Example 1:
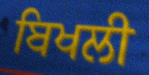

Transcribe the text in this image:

ਬਿਖਲੀ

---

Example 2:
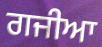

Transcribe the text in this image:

ਗਜੀਆ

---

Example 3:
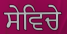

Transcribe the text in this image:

ਸੇਵਿਚੇ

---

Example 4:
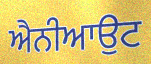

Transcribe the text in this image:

ਐਨੀਆਉਟ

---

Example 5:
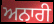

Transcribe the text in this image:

ਅਨਾਰੀ